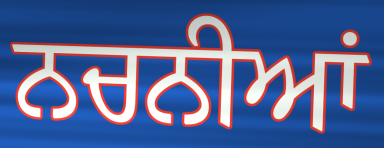
ਨਚਨੀਆਂ